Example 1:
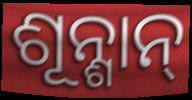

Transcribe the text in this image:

ଶୂନ୍ଶାନ୍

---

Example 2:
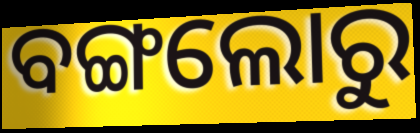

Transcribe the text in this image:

ବଙ୍ଗଲୋରୁ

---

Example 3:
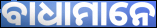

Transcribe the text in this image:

ବାଧାମାନେ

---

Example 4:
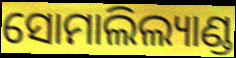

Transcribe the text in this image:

ସୋମାଲିଲ୍ୟାଣ୍ଡ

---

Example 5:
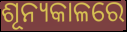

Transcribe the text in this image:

ଶୂନ୍ୟକାଳରେ